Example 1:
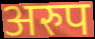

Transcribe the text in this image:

अरुप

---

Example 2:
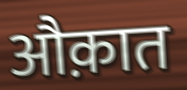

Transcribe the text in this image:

औक़ात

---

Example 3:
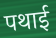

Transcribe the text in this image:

पथाई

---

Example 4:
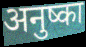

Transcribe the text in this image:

अनुष्का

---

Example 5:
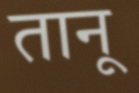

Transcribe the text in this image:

तानू